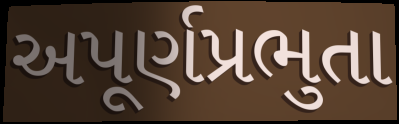
અપૂર્ણપ્રભુતા